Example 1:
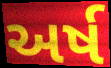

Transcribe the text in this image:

અર્ષ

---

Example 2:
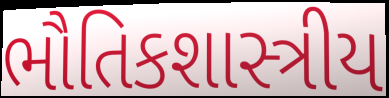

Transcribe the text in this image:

ભૌતિકશાસ્ત્રીય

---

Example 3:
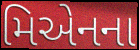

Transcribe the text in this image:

મિએનના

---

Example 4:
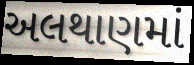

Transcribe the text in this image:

અલથાણમાં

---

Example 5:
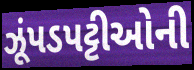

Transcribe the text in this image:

ઝૂંપડપટ્ટીઓની